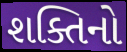
શક્તિનો